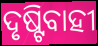
ଦୃଷ୍ଟିବାହୀ